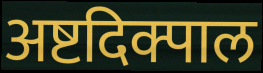
अष्टदिक्पाल